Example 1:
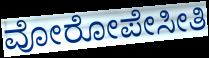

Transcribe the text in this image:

ವೋರೋಪೇಸೀತಿ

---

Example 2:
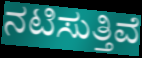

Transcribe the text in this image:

ನಟಿಸುತ್ತಿವೆ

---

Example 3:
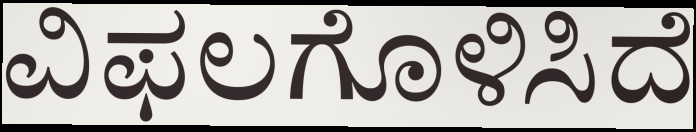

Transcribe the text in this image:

ವಿಫಲಗೊಳಿಸಿದೆ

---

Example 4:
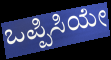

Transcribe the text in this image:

ಒಪ್ಪಿಸಿಯೇ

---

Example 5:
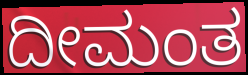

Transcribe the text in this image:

ದೀಮಂತ